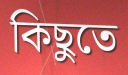
কিছুতে